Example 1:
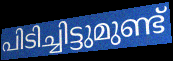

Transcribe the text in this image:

പിടിച്ചിട്ടുമുണ്ട്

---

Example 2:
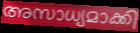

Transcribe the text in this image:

അസാധ്യമാക്കി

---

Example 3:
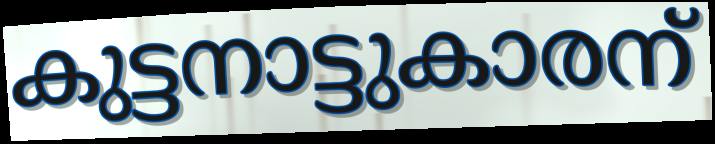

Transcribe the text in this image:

കുട്ടനാട്ടുകാരന്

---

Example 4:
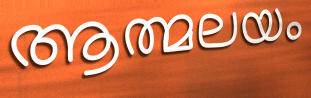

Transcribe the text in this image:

ആത്മലയം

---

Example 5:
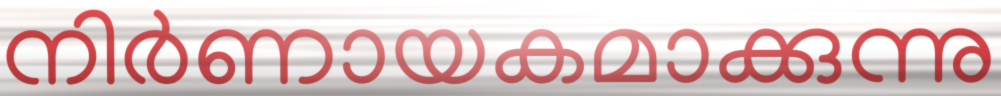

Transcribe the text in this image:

നിർണായകമാക്കുന്നു